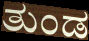
ತುಂಡ